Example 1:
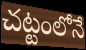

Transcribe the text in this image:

చట్టంలోనే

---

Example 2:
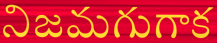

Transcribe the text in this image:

నిజమగుగాక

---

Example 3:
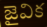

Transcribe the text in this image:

జైవిక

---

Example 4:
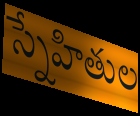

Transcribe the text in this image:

స్నేహితుల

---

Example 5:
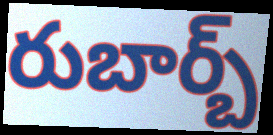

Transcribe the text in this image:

రుబార్బ్